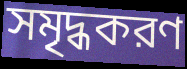
সমৃদ্ধকরণ